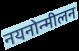
नयनोन्मीलन